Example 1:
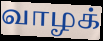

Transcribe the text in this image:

வாழக்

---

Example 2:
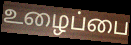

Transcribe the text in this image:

உழைப்பை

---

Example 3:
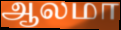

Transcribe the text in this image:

ஆலமா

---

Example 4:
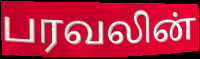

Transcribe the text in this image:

பரவலின்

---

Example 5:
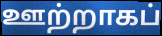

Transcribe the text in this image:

ஊற்றாகப்